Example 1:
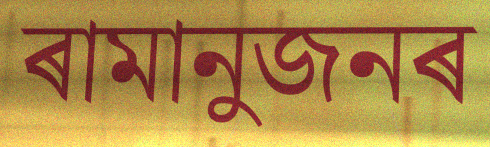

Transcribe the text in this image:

ৰামানুজনৰ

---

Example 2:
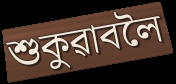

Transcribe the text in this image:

শুকুৱাবলৈ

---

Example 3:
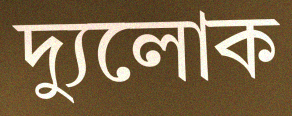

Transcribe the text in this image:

দ্যুলোক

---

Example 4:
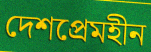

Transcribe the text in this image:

দেশপ্ৰেমহীন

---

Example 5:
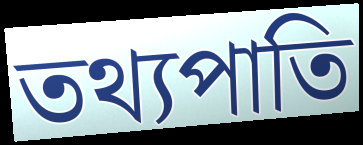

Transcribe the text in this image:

তথ্যপাতি